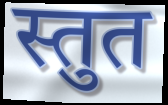
स्तुत